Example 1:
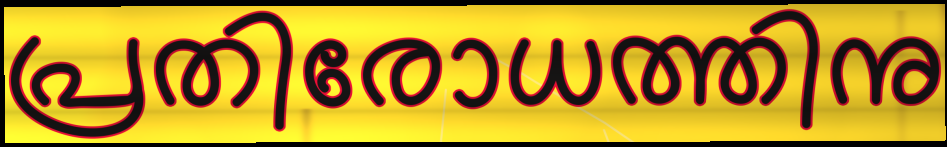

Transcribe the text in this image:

പ്രതിരോധത്തിനു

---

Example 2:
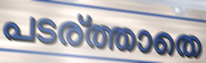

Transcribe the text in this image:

പടര്ത്താതെ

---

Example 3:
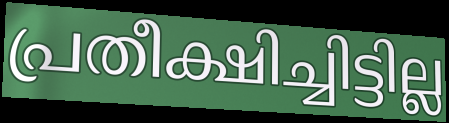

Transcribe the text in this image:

പ്രതീക്ഷിച്ചിട്ടില്ല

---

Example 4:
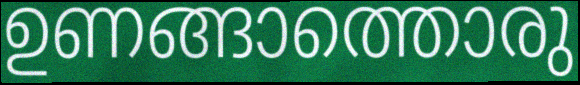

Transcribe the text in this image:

ഉണങ്ങാത്തൊരു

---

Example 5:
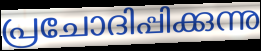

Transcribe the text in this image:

പ്രചോദിപ്പിക്കുന്നു